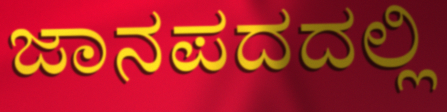
ಜಾನಪದದಲ್ಲಿ